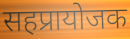
सहप्रायोजक